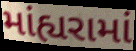
માંહ્યરામાં